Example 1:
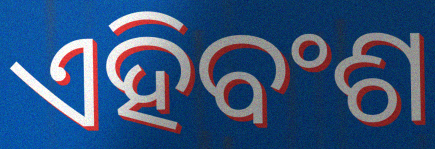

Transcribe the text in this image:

ଏହିବଂଶ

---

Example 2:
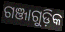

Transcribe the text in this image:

ଗଞ୍ଜାଗୁଡ଼ିକ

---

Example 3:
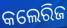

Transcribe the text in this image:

କଲେରିଜ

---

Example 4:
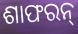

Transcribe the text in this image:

ଶାଫରନ୍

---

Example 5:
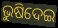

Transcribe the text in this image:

ଭୁଷିଦେଇ